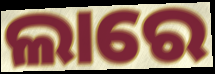
ଲାରେ